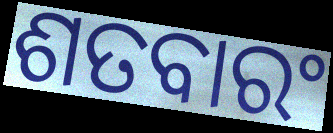
ଶତବାରଂ